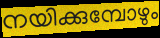
നയിക്കുമ്പോഴും